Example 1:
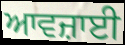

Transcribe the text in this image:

ਆਵਜ਼ਾਈ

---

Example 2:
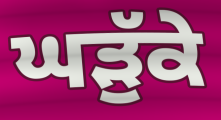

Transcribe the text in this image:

ਘੜੁੱਕੇ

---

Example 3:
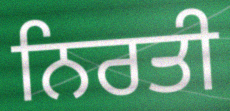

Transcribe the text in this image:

ਨਿਰਤੀ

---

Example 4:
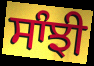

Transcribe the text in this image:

ਸਾੰਝੀ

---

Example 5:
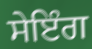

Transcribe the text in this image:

ਸੇਇੰਗ